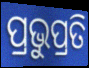
ପ୍ରଭୁପ୍ରତି